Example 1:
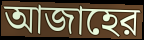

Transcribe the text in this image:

আজাহের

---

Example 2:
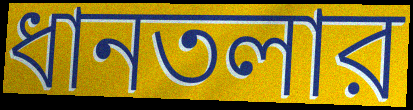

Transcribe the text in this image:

ধানতলার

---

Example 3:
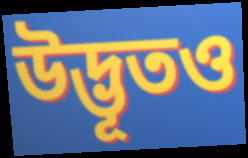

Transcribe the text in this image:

উদ্ভূতও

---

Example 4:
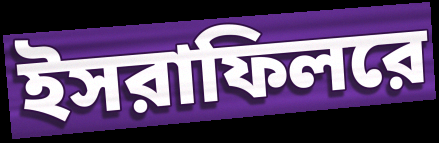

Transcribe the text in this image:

ইসরাফিলরে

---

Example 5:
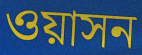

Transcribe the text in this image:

ওয়াসন